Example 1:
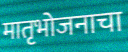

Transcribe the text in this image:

मातृभोजनाचा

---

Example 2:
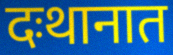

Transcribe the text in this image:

दःथानात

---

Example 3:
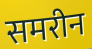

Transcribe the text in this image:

समरीन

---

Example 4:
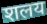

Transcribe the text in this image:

शलय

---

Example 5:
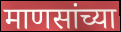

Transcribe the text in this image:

माणसांच्या